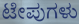
ಟೇಪುಗಳು